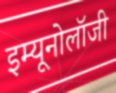
इम्यूनोलॉजी